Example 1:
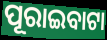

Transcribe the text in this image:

ପୂରାଇବାଟା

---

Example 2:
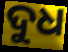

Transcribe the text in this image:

ଦୁଧ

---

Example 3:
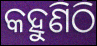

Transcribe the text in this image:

କହୁଣିଠି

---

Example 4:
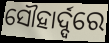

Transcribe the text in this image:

ସୌହାର୍ଦ୍ଦରେ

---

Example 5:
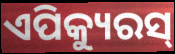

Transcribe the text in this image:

ଏପିକ୍ୟୁରସ୍